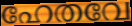
ഹേതവേ